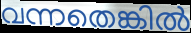
വന്നതെങ്കിൽ